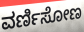
ವರ್ಣಿಸೋಣ